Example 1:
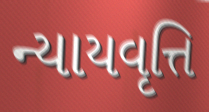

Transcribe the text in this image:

ન્યાયવૃત્તિ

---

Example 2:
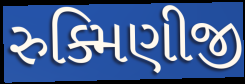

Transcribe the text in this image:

રુક્મિણીજી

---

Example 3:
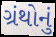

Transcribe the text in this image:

ગ્રંથોનું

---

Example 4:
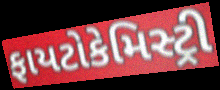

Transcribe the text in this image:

ફાયટોકેમિસ્ટ્રી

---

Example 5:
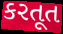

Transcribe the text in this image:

કરતૂત